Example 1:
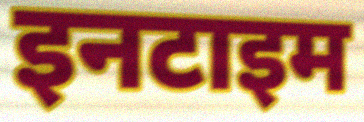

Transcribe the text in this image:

इनटाइम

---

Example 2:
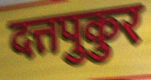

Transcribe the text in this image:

दत्तपुकुर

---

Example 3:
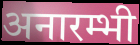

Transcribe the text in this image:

अनारम्भी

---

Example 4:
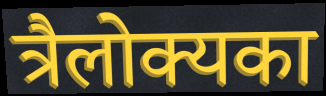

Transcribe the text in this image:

त्रैलोक्यका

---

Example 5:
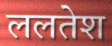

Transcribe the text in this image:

ललतेश